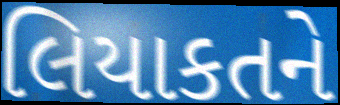
લિયાકતને